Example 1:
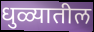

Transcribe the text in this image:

धुळ्यातील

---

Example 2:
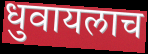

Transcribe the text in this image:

धुवायलाच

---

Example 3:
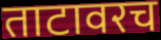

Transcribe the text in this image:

ताटावरच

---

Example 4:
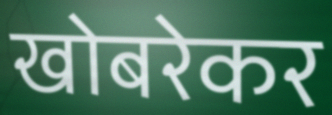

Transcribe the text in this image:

खोबरेकर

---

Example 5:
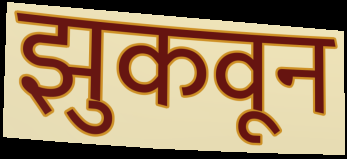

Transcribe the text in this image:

झुकवून